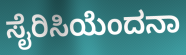
ಸೈರಿಸಿಯೆಂದನಾ